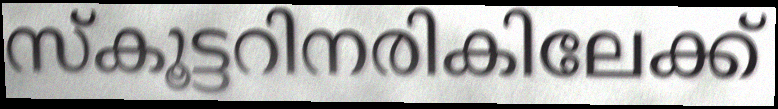
സ്കൂട്ടറിനരികിലേക്ക്